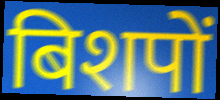
बिशपों